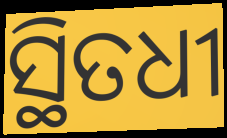
ସ୍ଥିତଧୀ